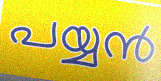
പയ്യൻ